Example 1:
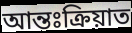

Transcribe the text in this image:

আন্তঃক্ৰিয়াত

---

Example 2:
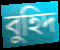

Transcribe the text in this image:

বুহিদ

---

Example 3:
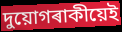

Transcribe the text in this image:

দুয়োগৰাকীয়েই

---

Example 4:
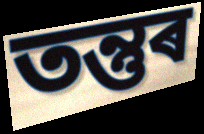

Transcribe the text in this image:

তন্তুৰ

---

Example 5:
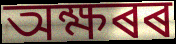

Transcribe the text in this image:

অক্ষৰৰ